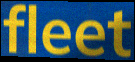
fleet